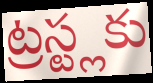
ట్రస్ట్లకు